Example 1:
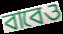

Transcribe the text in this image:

বাবেও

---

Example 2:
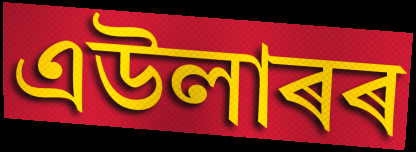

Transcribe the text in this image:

এউলাৰৰ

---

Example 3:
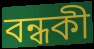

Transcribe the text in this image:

বন্ধকী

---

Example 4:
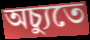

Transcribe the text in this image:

অচ্যুতে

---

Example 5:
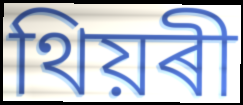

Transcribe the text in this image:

থিয়ৰী